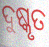
ଦୁଷ୍କୃତ